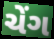
ચેંગ